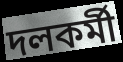
দলকর্মী